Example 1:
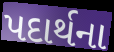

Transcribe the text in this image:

પદાર્થના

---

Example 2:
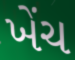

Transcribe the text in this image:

ખેંચ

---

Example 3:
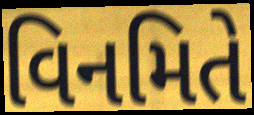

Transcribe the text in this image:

વિનમિતે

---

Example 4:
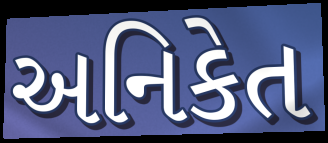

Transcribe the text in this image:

અનિકેત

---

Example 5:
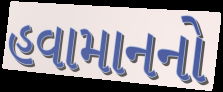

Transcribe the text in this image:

હવામાનનો